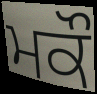
ਮਕੌ